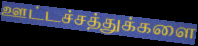
ஊட்டச்சத்துக்களை